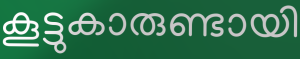
കൂട്ടുകാരുണ്ടായി